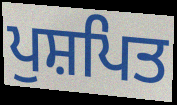
ਪੁਸ਼ਪਿਤ